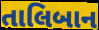
તાલિબાન